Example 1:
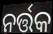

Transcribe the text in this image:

ନର୍ତ୍ତକ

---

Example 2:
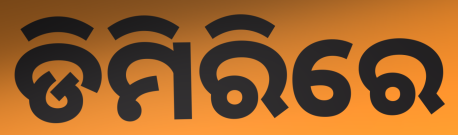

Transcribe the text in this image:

ଡିମିରିରେ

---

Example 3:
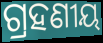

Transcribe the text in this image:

ଗ୍ରହଣୀୟ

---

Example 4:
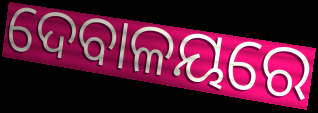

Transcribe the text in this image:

ଦେବାଳୟରେ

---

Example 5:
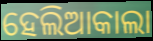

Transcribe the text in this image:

ହେଲିଆକାଲା